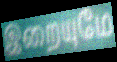
இறையுமே